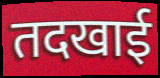
तदखाई